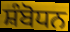
ਸ਼ੰਬੋਧਨ